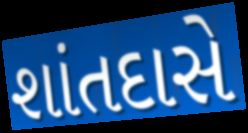
શાંતદાસે